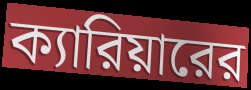
ক্যারিয়ারের